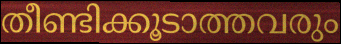
തീണ്ടിക്കൂടാത്തവരും